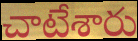
చాటేశారు